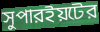
সুপারইয়টের